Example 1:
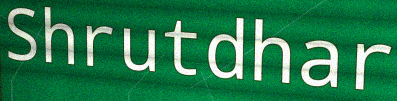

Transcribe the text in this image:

Shrutdhar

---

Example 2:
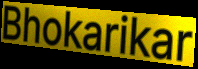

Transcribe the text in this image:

Bhokarikar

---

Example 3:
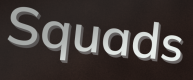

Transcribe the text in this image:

Squads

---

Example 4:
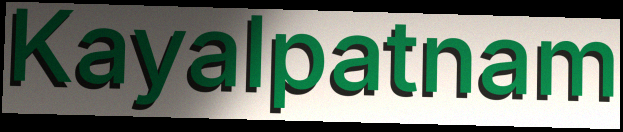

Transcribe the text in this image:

Kayalpatnam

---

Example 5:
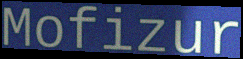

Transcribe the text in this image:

Mofizur